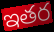
ఇతర